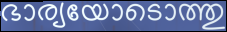
ഭാര്യയോടൊത്തു